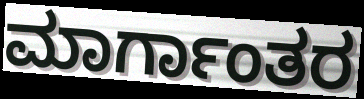
ಮಾರ್ಗಾಂತರ